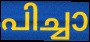
പിച്ചാ